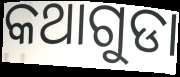
କଥାଗୁଡା